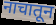
नाचातून